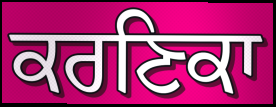
ਕਰਣਿਕਾ